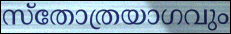
സ്തോത്രയാഗവും